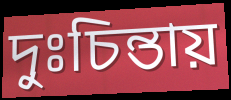
দুঃচিন্তায়